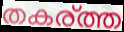
തകര്ത്ത